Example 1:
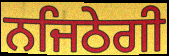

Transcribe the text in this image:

ਨਜਿਠੇਗੀ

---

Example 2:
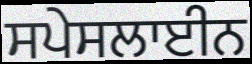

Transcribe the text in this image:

ਸਪੇਸਲਾਈਨ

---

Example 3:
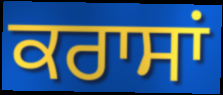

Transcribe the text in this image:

ਕਰਾਸਾਂ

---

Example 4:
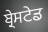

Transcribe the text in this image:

ਬ੍ਰੇਸਟੇਡ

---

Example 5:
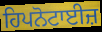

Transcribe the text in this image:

ਹਿਪਨੋਟਾਈਜ਼